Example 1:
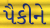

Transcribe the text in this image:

પૈકીને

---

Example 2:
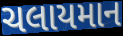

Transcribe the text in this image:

ચલાયમાન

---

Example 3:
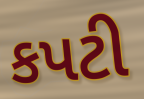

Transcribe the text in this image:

કપટી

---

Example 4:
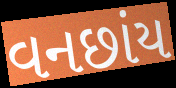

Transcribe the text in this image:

વનછાંય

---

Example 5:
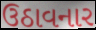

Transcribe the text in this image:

ઉઠાવનાર